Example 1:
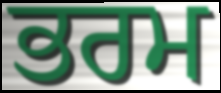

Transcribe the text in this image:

ਭਰਮ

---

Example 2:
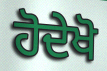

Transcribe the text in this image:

ਹੋਦੇਖੋ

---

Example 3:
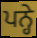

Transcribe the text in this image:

ਪਨ੍ਹੇ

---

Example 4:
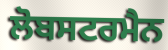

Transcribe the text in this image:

ਲੋਬਸਟਰਮੈਨ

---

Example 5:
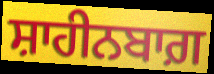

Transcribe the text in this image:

ਸ਼ਾਹੀਨਬਾਗ਼